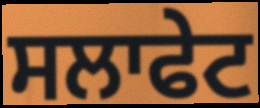
ਸਲਾਫੇਟ